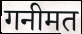
गनीमत